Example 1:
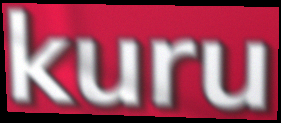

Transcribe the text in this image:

kuru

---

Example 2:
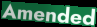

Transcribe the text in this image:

Amended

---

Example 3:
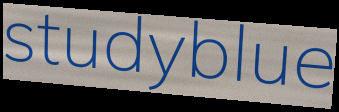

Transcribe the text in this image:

studyblue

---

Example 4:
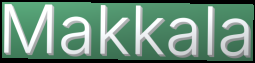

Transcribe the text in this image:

Makkala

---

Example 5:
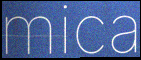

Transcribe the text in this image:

mica